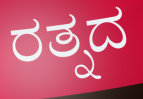
ರತ್ನದ